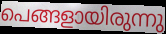
പെങ്ങളായിരുന്നു